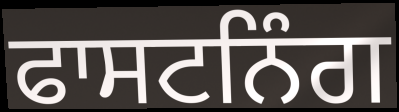
ਫਾਸਟਨਿੰਗ